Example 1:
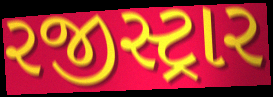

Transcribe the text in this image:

રજીસ્ટ્રાર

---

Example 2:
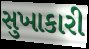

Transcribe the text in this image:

સુખાકારી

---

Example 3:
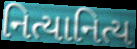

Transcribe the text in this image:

નિત્યાનિત્ય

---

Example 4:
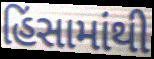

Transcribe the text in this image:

હિંસામાંથી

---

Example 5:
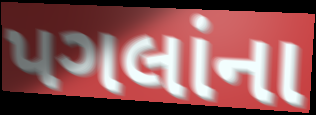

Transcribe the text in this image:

પગલાંના